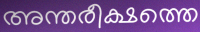
അന്തരീക്ഷത്തെ